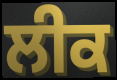
ਲੀਕ